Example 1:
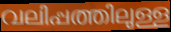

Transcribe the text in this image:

വലിപ്പത്തിലുള്ള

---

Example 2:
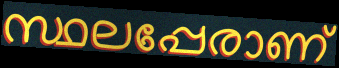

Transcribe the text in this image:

സ്ഥലപ്പേരാണ്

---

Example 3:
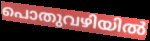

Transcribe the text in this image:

പൊതുവഴിയിൽ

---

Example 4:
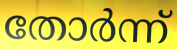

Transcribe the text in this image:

തോർന്ന്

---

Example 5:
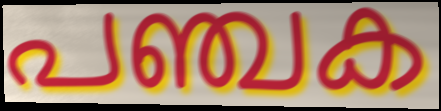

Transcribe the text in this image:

പഞ്ചക